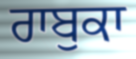
ਰਾਬੁਕਾ